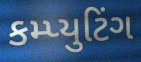
કમ્પ્યુટિંગ